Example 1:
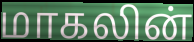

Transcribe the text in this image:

மாகலின்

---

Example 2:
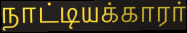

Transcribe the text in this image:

நாட்டியக்காரர்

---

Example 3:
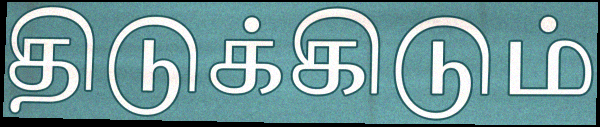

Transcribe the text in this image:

திடுக்கிடும்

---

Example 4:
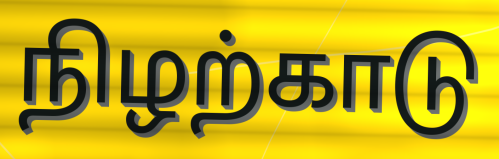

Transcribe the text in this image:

நிழற்காடு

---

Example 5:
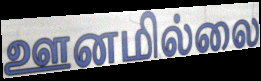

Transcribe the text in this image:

ஊனமில்லை